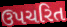
ઉપચરિત